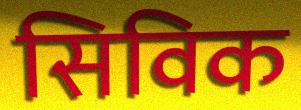
सिविक